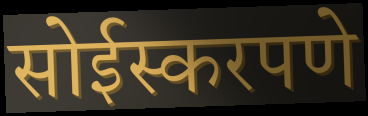
सोईस्करपणे